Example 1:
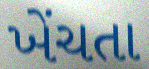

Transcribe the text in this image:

ખેંચતા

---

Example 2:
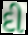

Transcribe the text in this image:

દી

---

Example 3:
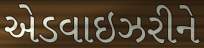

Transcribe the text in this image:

એડવાઇઝરીને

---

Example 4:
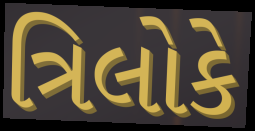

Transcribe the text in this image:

ત્રિલોકે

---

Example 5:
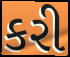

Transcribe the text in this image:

કરી